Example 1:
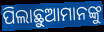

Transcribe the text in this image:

ପିଲାଛୁଆମାନଙ୍କୁ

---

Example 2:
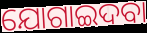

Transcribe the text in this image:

ଯୋଗାଇଦବା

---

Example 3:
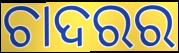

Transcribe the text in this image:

ଚାଦରର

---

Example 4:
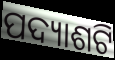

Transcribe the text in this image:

ପଦ୍ୟାଶଟି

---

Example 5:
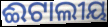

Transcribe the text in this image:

ଈଟାଲୀୟ